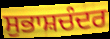
ਸੁਭਾਸ਼ਚੰਦਰ